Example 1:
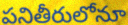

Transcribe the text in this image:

పనితీరులోనూ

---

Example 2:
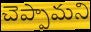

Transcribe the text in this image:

చెప్పామని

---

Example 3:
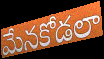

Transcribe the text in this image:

మేనకోడలా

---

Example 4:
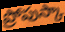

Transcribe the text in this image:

ప్రోపుస్కా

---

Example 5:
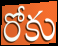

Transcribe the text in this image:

రోకు